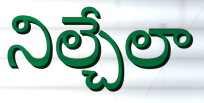
నిల్చేలా